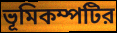
ভূমিকম্পটির